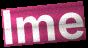
Ime